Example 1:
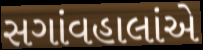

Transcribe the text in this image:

સગાંવહાલાંએ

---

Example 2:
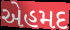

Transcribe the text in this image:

એહમદ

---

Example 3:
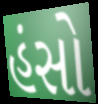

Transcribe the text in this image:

હંસો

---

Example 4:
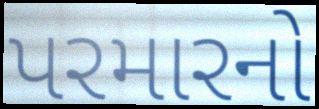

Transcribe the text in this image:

પરમારનો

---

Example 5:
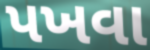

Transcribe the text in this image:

પખવા